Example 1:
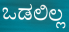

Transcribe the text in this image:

ಒಡಲಿಲ್ಲ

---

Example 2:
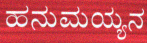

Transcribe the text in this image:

ಹನುಮಯ್ಯನ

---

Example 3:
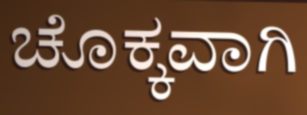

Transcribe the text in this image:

ಚೊಕ್ಕವಾಗಿ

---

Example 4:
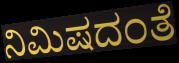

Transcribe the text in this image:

ನಿಮಿಷದಂತೆ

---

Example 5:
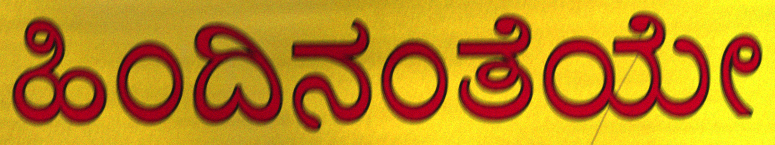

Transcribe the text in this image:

ಹಿಂದಿನಂತೆಯೇ